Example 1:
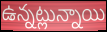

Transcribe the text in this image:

ఉన్నట్లున్నాయి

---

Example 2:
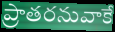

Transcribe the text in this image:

ప్రాతరనువాకే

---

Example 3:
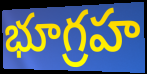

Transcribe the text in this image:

భూగ్రహ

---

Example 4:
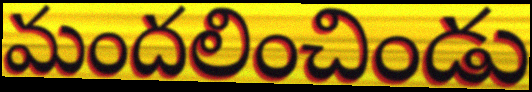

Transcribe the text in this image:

మందలించిండు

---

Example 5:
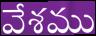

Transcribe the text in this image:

వేశము